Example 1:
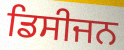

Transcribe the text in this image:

ਡਿਸੀਜਨ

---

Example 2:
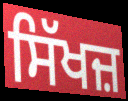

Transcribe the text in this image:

ਸਿੱਖਜ਼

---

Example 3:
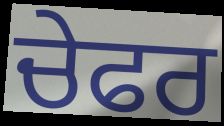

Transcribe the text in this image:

ਚੇਫਰ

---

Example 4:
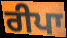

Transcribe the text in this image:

ਰੀਪਾ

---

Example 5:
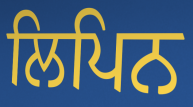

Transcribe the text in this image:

ਲਿਪਿਨ